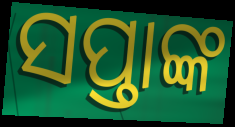
ସପ୍ତାଙ୍କ